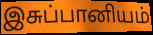
இசுப்பானியம்